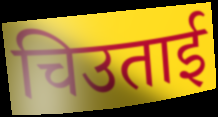
चिउताई